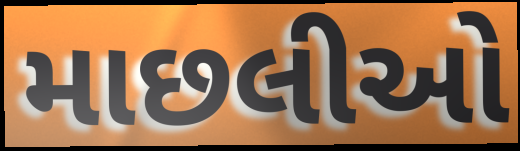
માછલીઓ